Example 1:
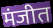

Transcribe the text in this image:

मंजीत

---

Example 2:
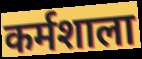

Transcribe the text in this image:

कर्मशाला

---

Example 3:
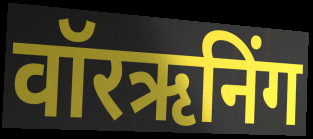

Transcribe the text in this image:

वॉरऋनिंग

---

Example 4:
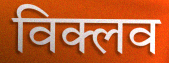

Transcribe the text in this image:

विक्लव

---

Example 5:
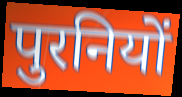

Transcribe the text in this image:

पुरनियों